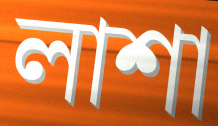
লাশা